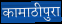
कामाठीपुरा